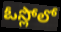
ఓస్లోలో